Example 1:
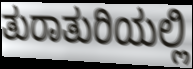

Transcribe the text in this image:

ತುರಾತುರಿಯಲ್ಲಿ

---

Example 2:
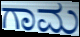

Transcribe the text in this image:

ಗಾಮ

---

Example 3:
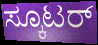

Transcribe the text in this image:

ಸ್ಕೂಟರ್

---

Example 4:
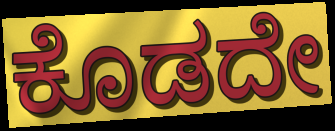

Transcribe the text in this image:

ಕೊಡದೇ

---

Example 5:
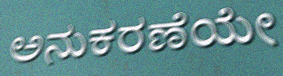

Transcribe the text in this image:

ಅನುಕರಣೆಯೇ